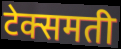
टेक्समती